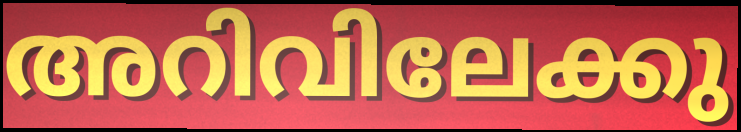
അറിവിലേക്കു